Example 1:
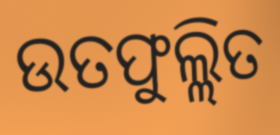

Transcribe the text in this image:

ଉତଫୁଲ୍ଲିତ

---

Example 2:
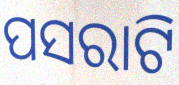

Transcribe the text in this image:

ପସରାଟି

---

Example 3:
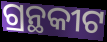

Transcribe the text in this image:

ଗ୍ରନ୍ଥକୀଟ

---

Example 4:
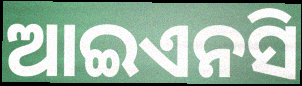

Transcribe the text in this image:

ଆଇଏନସି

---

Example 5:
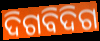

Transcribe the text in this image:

ଦିଗବିଦିଗ